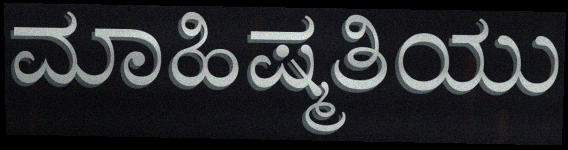
ಮಾಹಿಷ್ಮತಿಯು